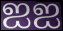
ஐஐ